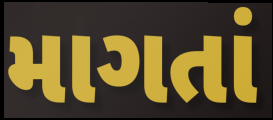
માગતાં